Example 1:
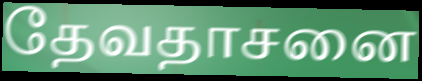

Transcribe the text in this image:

தேவதாசனை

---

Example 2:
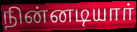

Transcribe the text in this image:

நின்னடியார்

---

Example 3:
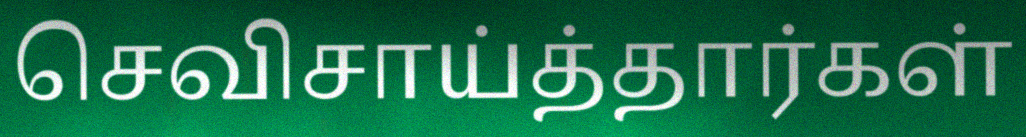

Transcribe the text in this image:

செவிசாய்த்தார்கள்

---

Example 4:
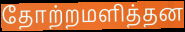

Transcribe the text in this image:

தோற்றமளித்தன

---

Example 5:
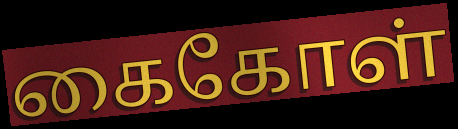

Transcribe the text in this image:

கைகோள்